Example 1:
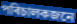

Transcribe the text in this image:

পৰিচালকজনে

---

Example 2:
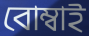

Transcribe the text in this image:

বোম্বাই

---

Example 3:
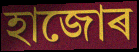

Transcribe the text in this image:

হাজোৰ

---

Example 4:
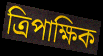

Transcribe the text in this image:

ত্ৰিপাক্ষিক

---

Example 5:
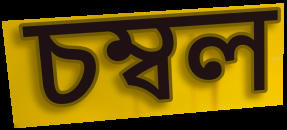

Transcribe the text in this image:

চম্বল